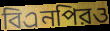
বিএনপিরও